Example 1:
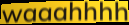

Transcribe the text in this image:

waaahhhh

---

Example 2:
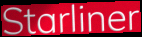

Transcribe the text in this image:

Starliner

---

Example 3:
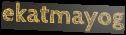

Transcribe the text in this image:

ekatmayog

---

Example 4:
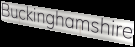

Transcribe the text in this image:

Buckinghamshire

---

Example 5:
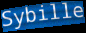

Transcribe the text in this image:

Sybille